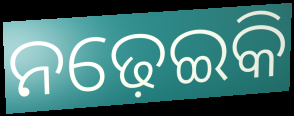
ନଢ଼େଇକି